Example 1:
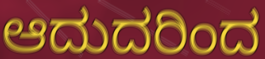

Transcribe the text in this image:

ಆದುದರಿಂದ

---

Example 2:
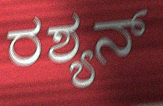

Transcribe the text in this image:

ರಶ್ಯನ್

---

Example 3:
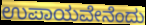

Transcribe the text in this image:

ಉಪಾಯವೇನೆಂದು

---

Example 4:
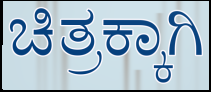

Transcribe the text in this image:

ಚಿತ್ರಕ್ಕಾಗಿ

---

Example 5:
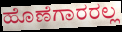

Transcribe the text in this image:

ಹೊಣೆಗಾರರಲ್ಲ